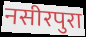
नसीरपुरा